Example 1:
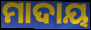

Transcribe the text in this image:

ମାଦାୟ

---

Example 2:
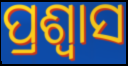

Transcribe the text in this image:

ପ୍ରଶ୍ୱାସ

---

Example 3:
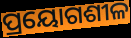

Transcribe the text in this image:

ପ୍ରୟୋଗଶୀଳ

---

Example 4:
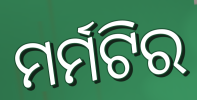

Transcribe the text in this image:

ମର୍ମଟିର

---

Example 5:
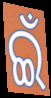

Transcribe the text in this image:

ଇଁ